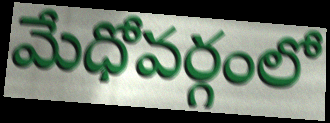
మేధోవర్గంలో